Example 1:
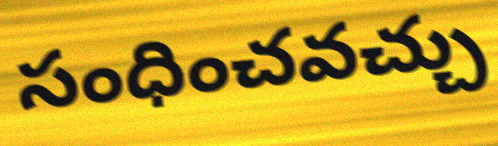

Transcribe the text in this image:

సంధించవచ్చు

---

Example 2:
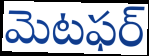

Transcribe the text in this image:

మెటఫర్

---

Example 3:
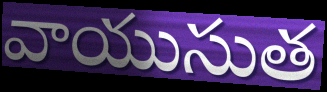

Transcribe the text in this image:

వాయుసుత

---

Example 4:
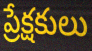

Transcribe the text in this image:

ప్రేక్షకులు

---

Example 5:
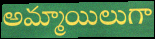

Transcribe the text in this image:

అమ్మాయిలుగా